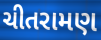
ચીતરામણ